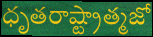
ధృతరాష్ట్రాత్మజో